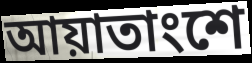
আয়াতাংশে